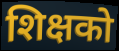
शिक्षको